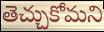
తెచ్చుకోమని